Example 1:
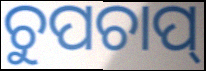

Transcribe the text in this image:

ଚୁପଚାପ୍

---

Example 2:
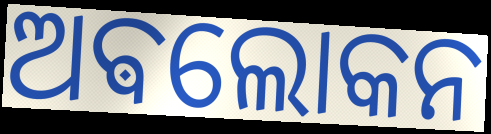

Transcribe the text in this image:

ଅଵଲୋକନ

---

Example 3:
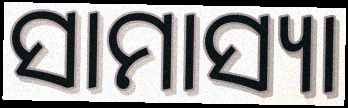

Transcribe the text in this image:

ସାମାସ୍ୟା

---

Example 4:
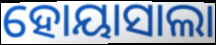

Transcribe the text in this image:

ହୋୟାସାଲା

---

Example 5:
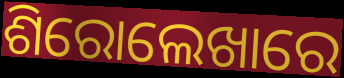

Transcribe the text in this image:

ଶିରୋଲେଖାରେ